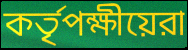
কর্তৃপক্ষীয়েরা